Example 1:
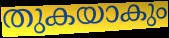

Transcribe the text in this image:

തുകയാകും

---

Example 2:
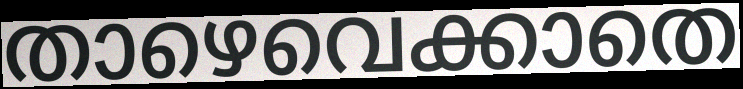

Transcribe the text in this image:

താഴെവെക്കാതെ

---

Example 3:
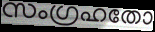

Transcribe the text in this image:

സംഗ്രഹതോ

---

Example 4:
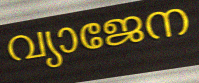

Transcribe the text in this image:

വ്യാജേന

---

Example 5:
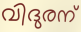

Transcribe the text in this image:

വിദുരന്